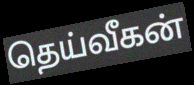
தெய்வீகன்